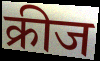
क्रीज